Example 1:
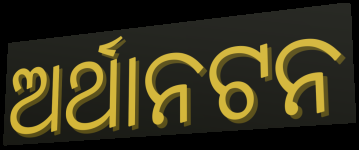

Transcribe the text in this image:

ଅର୍ଥାନଟନ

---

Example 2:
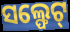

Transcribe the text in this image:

ସଲ୍ଫେଟ୍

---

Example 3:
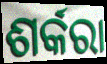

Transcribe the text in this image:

ଶର୍କରା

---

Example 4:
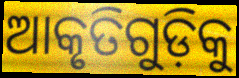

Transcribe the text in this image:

ଆକୃତିଗୁଡ଼ିକୁ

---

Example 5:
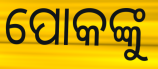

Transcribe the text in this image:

ପୋକଙ୍କୁ